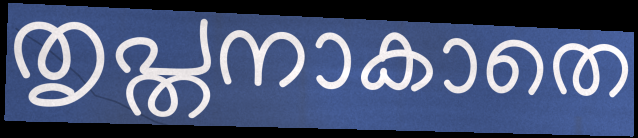
തൃപ്തനാകാതെ